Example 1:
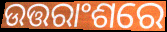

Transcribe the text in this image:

ଉତ୍ତରାଂଶରେ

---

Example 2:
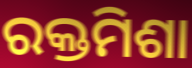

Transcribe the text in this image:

ରକ୍ତମିଶା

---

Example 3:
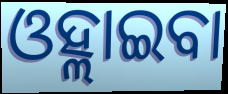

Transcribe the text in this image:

ଓହ୍ଲାଇବା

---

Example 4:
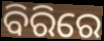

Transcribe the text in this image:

ବିରିରେ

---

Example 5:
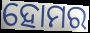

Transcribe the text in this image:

ହୋମର